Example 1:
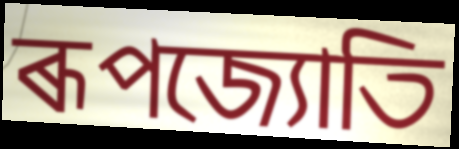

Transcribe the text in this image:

ৰূপজ্যোতি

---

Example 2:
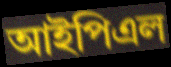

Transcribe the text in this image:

আইপিএল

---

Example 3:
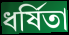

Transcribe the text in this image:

ধৰ্ষিতা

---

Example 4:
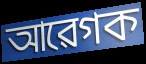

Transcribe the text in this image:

আৱেগক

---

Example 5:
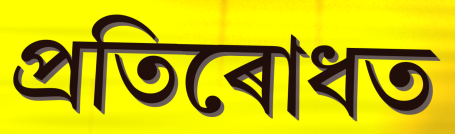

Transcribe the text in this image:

প্ৰতিৰোধত